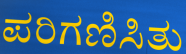
ಪರಿಗಣಿಸಿತು